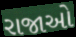
રાજાઓ